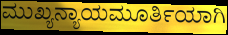
ಮುಖ್ಯನ್ಯಾಯಮೂರ್ತಿಯಾಗಿ